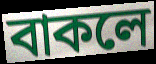
বাকলে